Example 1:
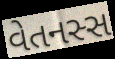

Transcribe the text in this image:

વેતનસ્સ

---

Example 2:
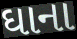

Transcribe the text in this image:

ઘાના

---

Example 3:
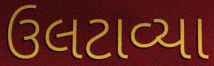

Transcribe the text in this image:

ઉલટાવ્યા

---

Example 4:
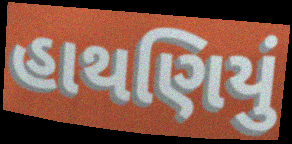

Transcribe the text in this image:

હાથણિયું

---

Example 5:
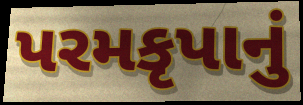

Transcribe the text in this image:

પરમકૃપાનું